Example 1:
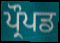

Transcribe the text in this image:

ਪ੍ਰੌਪਡ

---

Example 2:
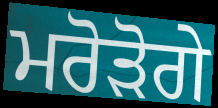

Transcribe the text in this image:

ਮਰੋੜੋਗੇ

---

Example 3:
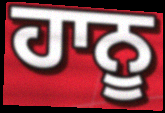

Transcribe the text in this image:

ਹਾਨੂ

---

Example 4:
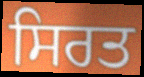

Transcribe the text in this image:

ਸਿਰਤ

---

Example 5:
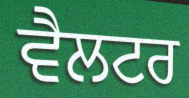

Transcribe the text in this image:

ਵੈਲਟਰ